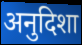
अनुदिशा